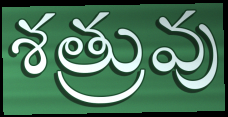
శత్రువు